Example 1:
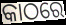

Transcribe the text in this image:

କାଠରେ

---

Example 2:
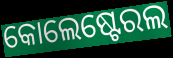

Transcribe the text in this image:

କୋଲେଷ୍ଟେରଲ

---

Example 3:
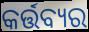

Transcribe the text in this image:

କର୍ତ୍ତବ୍ୟର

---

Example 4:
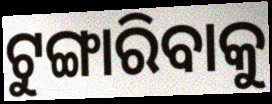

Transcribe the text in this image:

ଟୁଙ୍ଗାରିବାକୁ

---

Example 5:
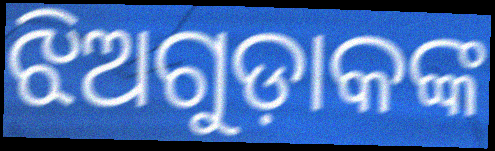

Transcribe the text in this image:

ଝିଅଗୁଡ଼ାକଙ୍କ